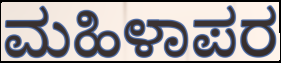
ಮಹಿಳಾಪರ